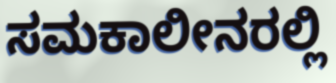
ಸಮಕಾಲೀನರಲ್ಲಿ